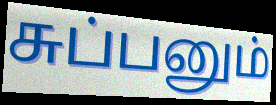
சுப்பனும்